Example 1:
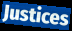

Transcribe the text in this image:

Justices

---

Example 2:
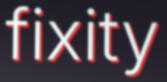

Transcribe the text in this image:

fixity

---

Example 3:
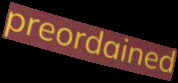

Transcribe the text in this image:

preordained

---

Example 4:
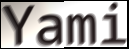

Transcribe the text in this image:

Yami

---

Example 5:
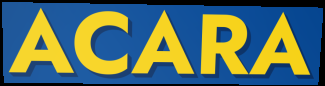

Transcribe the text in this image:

ACARA